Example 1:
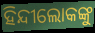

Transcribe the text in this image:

ହିନ୍ଦୀଲୋକଙ୍କୁ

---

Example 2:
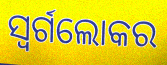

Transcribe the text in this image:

ସ୍ୱର୍ଗଲୋକର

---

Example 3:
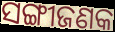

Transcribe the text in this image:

ସଙ୍ଗୀଜଣକ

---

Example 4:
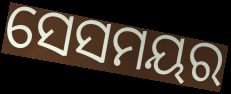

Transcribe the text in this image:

ସେସମୟର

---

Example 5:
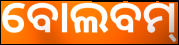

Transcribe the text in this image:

ବୋଲବମ୍